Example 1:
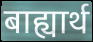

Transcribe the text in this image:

बाह्यार्थ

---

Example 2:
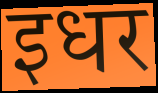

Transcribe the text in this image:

इधर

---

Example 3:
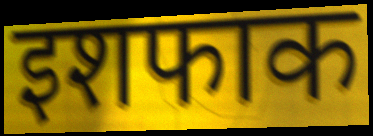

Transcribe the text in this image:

इशफाक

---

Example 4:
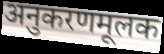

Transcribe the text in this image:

अनुकरणमूलक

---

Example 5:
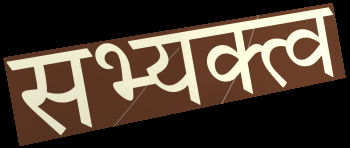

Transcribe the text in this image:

सभ्यक्त्व